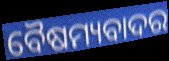
ବୈଷମ୍ୟବାଦର